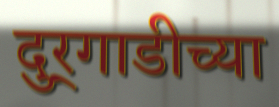
दुर्गाडीच्या